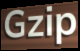
Gzip